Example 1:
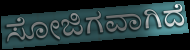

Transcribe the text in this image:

ಸೋಜಿಗವಾಗಿದೆ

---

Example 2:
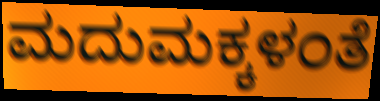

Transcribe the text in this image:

ಮದುಮಕ್ಕಳಂತೆ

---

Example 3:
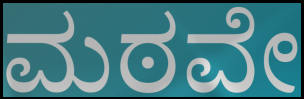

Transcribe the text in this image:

ಮಠವೇ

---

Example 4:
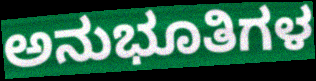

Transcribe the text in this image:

ಅನುಭೂತಿಗಳ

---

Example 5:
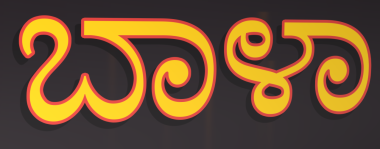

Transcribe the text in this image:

ಬಾಳಾ